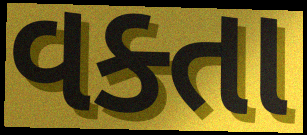
વક્તા